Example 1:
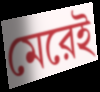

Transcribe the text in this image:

মেরেই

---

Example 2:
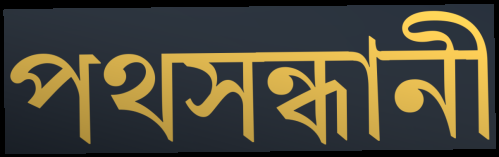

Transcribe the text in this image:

পথসন্ধানী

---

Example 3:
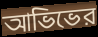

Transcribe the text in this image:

আভিভের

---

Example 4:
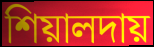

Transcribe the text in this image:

শিয়ালদায়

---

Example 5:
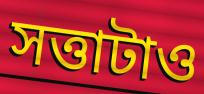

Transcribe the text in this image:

সত্তাটাও